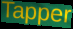
Tapper